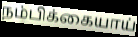
நம்பிக்கையாய்